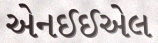
એનઈઈએલ